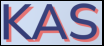
KAS